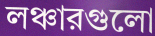
লঞ্চারগুলো